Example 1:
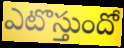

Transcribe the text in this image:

ఎటొస్తుందో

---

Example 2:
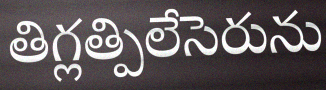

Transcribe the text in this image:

తిగ్లత్పిలేసెరును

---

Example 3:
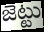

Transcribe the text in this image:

జెట్టు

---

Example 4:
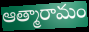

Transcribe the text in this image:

ఆత్మారామం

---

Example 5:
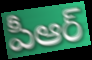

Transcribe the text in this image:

పీఆర్